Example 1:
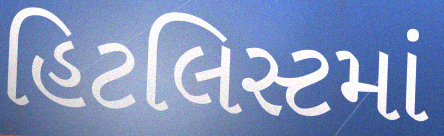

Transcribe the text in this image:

હિટલિસ્ટમાં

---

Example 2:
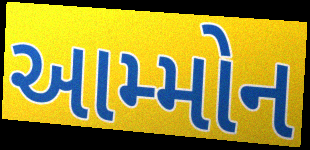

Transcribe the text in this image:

આમ્મોન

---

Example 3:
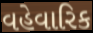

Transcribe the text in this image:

વહેવારિક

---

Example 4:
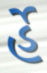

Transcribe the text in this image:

ર્હે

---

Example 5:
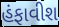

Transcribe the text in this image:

હંફાવીશ